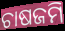
ଚାଷଜମି